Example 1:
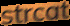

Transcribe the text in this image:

strcat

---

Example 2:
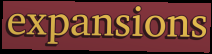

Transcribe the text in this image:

expansions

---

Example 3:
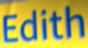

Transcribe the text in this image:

Edith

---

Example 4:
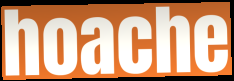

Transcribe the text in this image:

hoache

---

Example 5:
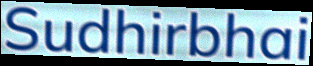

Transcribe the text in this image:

Sudhirbhai